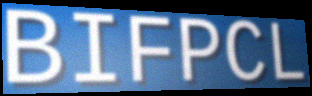
BIFPCL